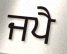
ਜਪੈ